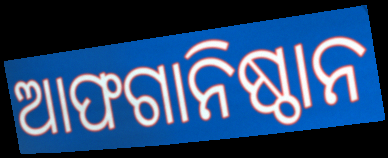
ଆଫଗାନିଷ୍ଠାନ